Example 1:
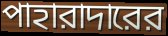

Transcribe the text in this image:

পাহারাদারের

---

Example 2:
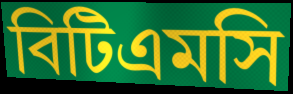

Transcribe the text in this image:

বিটিএমসি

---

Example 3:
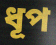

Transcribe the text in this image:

ধূপ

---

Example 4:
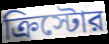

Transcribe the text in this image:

ক্রিস্টোর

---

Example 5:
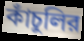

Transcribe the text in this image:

কাঁচুলির